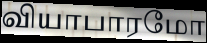
வியாபாரமோ